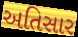
અતિસાર